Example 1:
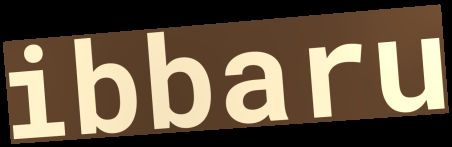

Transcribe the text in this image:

ibbaru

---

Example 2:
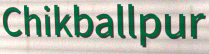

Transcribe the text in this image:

Chikballpur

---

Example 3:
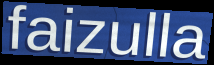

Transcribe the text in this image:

faizulla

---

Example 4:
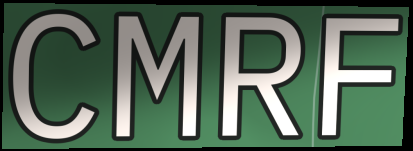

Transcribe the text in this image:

CMRF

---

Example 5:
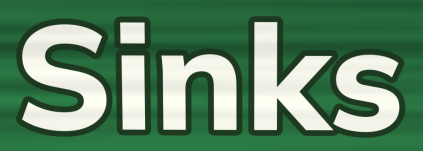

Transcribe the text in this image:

Sinks